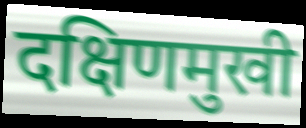
दक्षिणमुखी